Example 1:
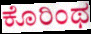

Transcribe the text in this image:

ಕೊರಿಂಥ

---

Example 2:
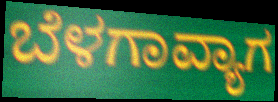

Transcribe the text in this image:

ಬೆಳಗಾವ್ಯಾಗ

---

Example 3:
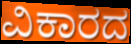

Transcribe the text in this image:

ವಿಕಾರದ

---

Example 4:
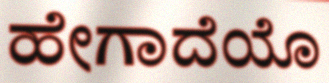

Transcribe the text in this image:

ಹೇಗಾದೆಯೊ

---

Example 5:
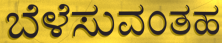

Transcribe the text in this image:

ಬೆಳೆಸುವಂತಹ